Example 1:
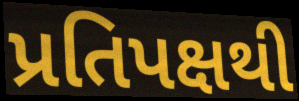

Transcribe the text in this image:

પ્રતિપક્ષથી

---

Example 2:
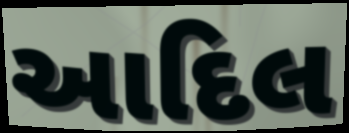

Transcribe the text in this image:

આદિલ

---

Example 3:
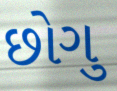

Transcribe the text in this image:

છોગુ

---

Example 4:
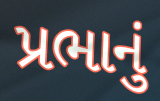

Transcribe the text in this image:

પ્રભાનું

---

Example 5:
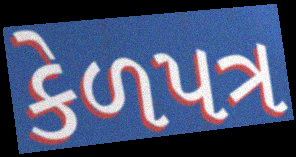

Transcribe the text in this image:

કેળપત્ર